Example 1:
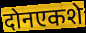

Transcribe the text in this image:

दोनएकशे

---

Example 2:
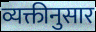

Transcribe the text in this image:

व्यक्तीनुसार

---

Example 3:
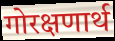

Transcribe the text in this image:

गोरक्षणार्थ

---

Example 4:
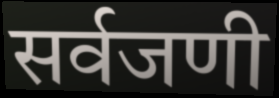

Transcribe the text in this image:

सर्वजणी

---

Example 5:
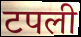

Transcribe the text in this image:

टपली